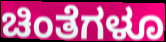
ಚಿಂತೆಗಳೂ